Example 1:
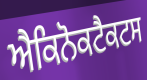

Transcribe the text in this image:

ਐਕਿਨੋਕਟੈਕਟਸ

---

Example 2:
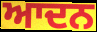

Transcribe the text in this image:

ਆਦਨ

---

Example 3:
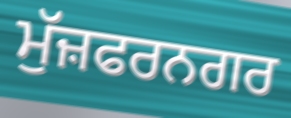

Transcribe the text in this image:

ਮੁੱਜ਼ਫਰਨਗਰ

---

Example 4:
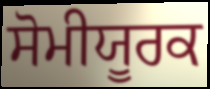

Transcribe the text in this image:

ਸੋਮੀਯੂਰਕ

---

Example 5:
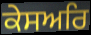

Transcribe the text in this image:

ਕੇਸਅਰਿ